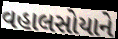
વહાલસોયાને